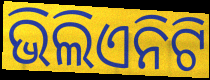
ଭିଲିଏନିଟି